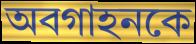
অবগাহনকে